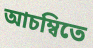
আচম্বিতে